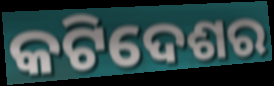
କଟିଦେଶର